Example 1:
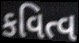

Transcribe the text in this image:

કવિત્વ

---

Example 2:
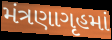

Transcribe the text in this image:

મંત્રણાગૃહમાં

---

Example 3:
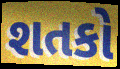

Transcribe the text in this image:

શતકો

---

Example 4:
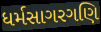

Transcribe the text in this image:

ધર્મસાગરગણિ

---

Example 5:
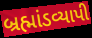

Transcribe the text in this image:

બ્રહ્માંડવ્યાપી